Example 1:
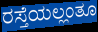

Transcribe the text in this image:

ರಸ್ತೆಯಲ್ಲಂತೂ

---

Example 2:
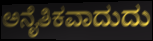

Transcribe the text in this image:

ಅನೈತಿಕವಾದುದು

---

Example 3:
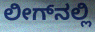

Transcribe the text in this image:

ಲೀಗ್‌ನಲ್ಲಿ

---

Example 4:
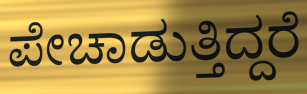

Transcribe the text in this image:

ಪೇಚಾಡುತ್ತಿದ್ದರೆ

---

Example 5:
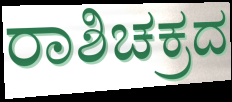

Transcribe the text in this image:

ರಾಶಿಚಕ್ರದ